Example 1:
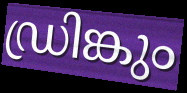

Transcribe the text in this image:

ഡ്രിങ്കും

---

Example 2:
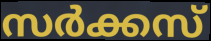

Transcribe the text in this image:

സർക്കസ്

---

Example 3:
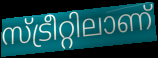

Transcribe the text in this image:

സ്ട്രീറ്റിലാണ്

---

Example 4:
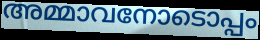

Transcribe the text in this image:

അമ്മാവനോടൊപ്പം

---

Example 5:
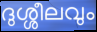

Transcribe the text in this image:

ദുശ്ശീലവും